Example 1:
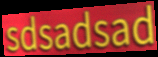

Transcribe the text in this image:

sdsadsad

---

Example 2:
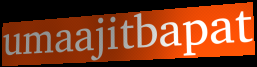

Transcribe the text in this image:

umaajitbapat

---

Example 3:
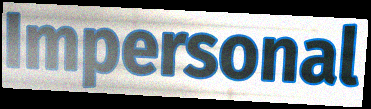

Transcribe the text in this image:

Impersonal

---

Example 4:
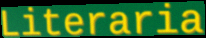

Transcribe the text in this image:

Literaria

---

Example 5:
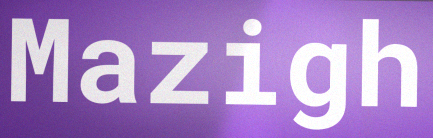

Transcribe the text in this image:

Mazigh